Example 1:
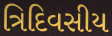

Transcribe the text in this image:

ત્રિદિવસીય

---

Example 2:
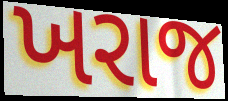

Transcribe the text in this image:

ખરાજ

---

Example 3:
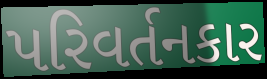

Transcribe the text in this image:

પરિવર્તનકાર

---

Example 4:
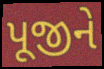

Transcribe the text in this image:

પૂજીને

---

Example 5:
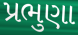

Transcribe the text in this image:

પ્રભુણા